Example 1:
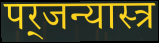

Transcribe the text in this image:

पर्जन्यास्त्र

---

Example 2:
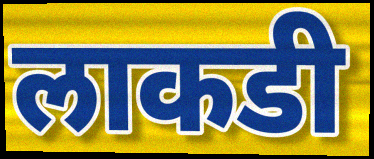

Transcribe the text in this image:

लाकडी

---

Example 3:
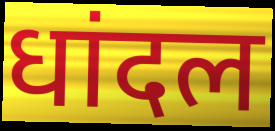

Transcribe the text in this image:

धांदल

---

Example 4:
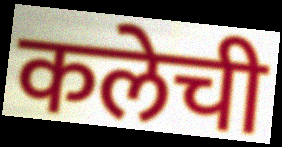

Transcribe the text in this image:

कलेची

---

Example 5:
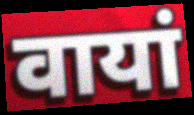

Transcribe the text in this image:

वायां